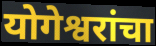
योगेश्वरांचा